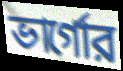
ভার্গোর